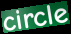
circle